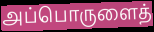
அப்பொருளைத்